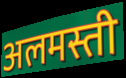
अलमस्ती